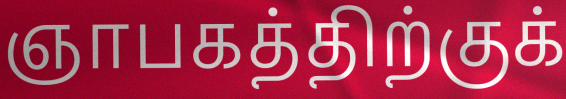
ஞாபகத்திற்குக்